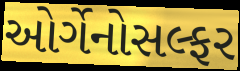
ઓર્ગેનોસલ્ફર